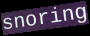
snoring